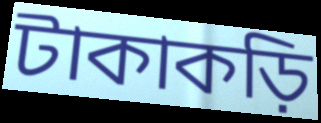
টাকাকড়ি